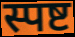
स्पष्ट